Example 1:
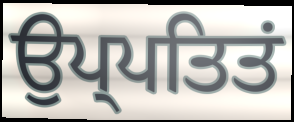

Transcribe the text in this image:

ਉਪ੍ਪਤਿਤਂ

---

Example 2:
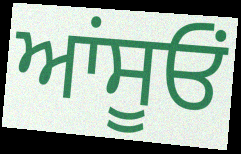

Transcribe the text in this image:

ਆਂਸੂਓਂ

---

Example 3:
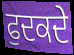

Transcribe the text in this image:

ਫੁਦਕਦੇ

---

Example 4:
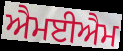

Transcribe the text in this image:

ਐਮਈਐਮ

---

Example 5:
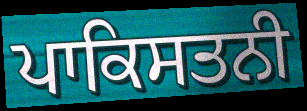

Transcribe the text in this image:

ਪਾਕਿਸਤਨੀ